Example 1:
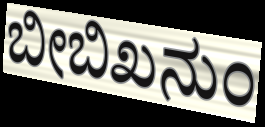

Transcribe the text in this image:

ಬೀಬಿಖನುಂ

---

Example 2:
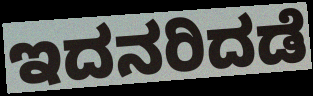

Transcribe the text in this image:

ಇದನರಿದಡೆ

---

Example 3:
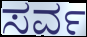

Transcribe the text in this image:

ಸರ್ವ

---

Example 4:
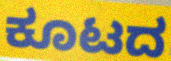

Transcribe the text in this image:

ಕೂಟದ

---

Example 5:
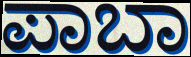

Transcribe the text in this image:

ಪಾಬಾ